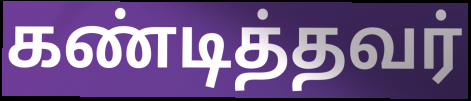
கண்டித்தவர்